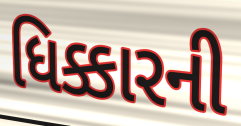
ધિક્કારની